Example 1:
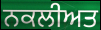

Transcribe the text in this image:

ਨਕਲੀਅਤ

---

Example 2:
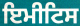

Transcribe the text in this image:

ਇਮੀਟਿਸ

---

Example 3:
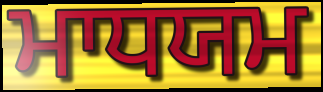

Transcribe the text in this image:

ਮਾਧਯਮ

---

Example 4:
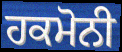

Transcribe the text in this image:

ਹਕਮੋਨੀ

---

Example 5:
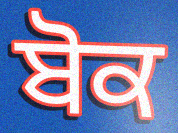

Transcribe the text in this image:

ਬੋਕ